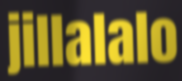
jillalalo